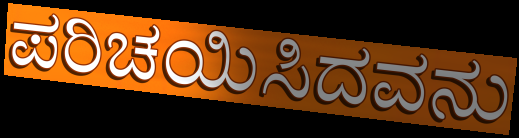
ಪರಿಚಯಿಸಿದವನು